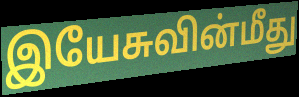
இயேசுவின்மீது